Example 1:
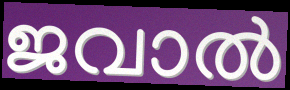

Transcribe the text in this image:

ജവാൽ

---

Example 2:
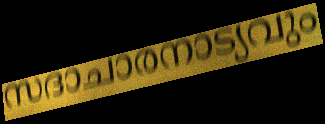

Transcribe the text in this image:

സദാചാരനാട്യവും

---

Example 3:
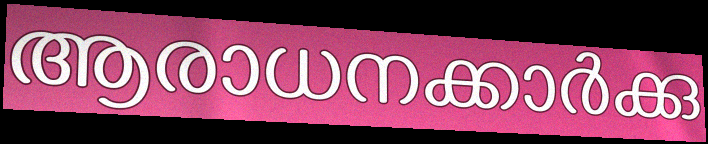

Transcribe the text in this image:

ആരാധനക്കാർക്കു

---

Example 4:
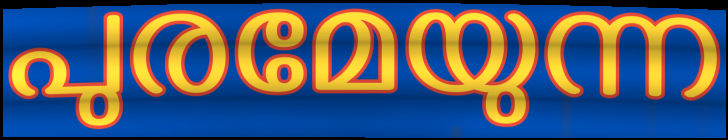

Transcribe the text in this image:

പുരമേയുന്ന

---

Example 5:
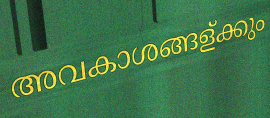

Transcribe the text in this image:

അവകാശങ്ങള്ക്കും